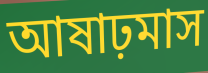
আষাঢ়মাস